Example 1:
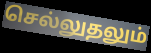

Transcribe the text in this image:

செல்லுதலும்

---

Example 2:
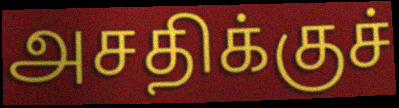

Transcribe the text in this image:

அசதிக்குச்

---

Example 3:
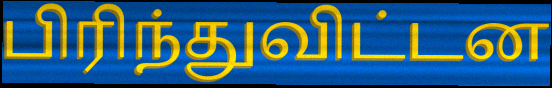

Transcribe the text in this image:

பிரிந்துவிட்டன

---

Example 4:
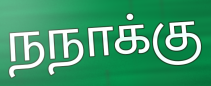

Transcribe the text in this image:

நநாக்கு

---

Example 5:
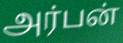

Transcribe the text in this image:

அர்பன்